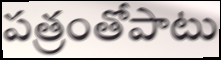
పత్రంతోపాటు